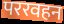
पररवहन